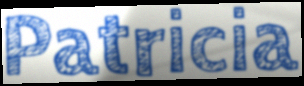
Patricia